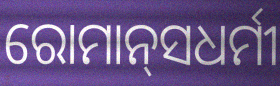
ରୋମାନ୍‌ସଧର୍ମୀ